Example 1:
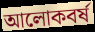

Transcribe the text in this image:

আলোকবর্ষ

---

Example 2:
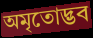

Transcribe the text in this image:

অমৃতোদ্ভব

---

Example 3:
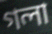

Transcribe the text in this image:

গলা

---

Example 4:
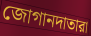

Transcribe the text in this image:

জোগানদাতারা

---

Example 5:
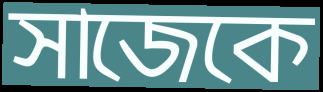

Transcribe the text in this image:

সাজেকে